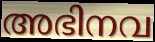
അഭിനവ